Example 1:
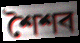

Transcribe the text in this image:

শৈশব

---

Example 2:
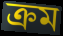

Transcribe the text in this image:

ক্ৰম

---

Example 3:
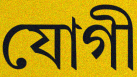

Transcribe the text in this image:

যোগী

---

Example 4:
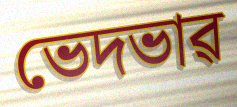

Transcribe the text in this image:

ভেদভাৱ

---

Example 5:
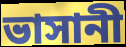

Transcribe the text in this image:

ভাসানী